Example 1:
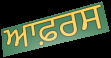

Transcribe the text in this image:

ਆਫ਼ਰਸ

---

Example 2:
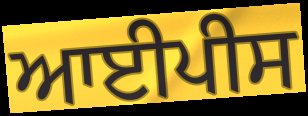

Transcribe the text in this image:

ਆਈਪੀਸ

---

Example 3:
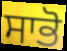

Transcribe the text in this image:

ਸਾਭੋ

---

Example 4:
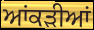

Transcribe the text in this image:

ਆਂਕੜੀਆਂ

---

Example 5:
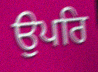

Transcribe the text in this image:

ਉਪਰਿ